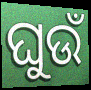
ଘୁଉଁ